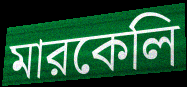
মারকেলি